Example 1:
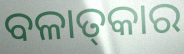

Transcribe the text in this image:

ବଳାତ୍‌କାର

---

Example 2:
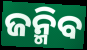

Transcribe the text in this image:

ଜନ୍ମିବ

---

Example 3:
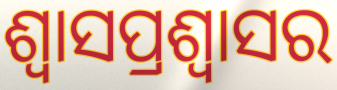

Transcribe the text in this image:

ଶ୍ଵାସପ୍ରଶ୍ଵାସର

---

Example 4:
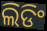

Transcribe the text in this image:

ଲିଡିଂ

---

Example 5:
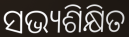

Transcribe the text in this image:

ସଭ୍ୟଶିକ୍ଷିତ